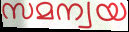
സമന്വയ